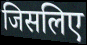
जिसलिए